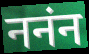
ननंन